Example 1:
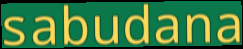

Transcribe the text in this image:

sabudana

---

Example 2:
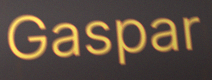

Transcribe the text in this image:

Gaspar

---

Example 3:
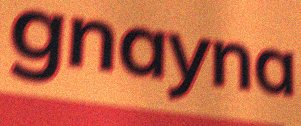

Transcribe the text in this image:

gnayna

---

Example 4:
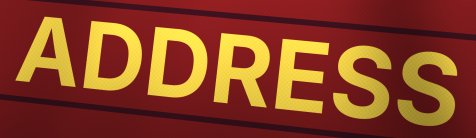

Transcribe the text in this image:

ADDRESS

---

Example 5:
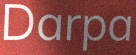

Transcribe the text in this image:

Darpa